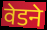
वेडने